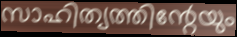
സാഹിത്യത്തിന്റേയും